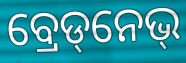
ବ୍ରେଡ୍‌ନେଭ୍